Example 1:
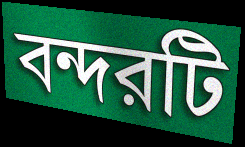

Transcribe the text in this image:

বন্দরটি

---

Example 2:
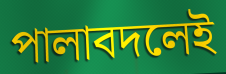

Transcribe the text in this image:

পালাবদলেই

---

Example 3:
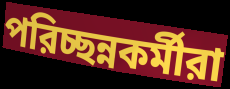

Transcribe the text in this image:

পরিচ্ছন্নকর্মীরা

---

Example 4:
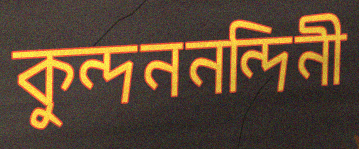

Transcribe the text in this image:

কুন্দননন্দিনী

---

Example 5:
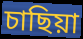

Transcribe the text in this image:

চাছিয়া